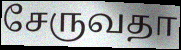
சேருவதா